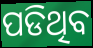
ପଡିଥିବ